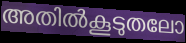
അതിൽകൂടുതലോ